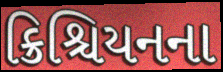
ક્રિશ્ચિયનના